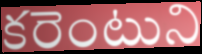
కరెంటుని